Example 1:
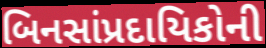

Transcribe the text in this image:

બિનસાંપ્રદાયિકોની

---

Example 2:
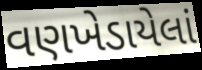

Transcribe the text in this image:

વણખેડાયેલાં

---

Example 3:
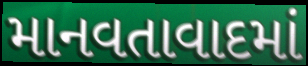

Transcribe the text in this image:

માનવતાવાદમાં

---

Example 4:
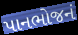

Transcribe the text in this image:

પાનભોજનં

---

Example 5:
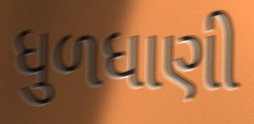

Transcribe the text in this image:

ધુળધાણી